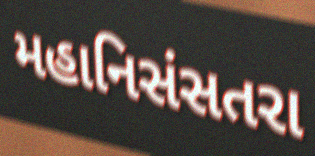
મહાનિસંસતરા